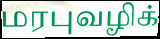
மரபுவழிக்